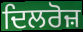
ਦਿਲਰੋਜ਼